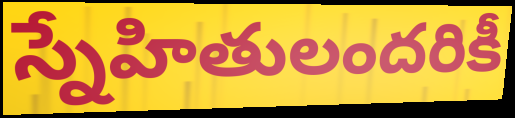
స్నేహితులందరికీ